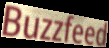
Buzzfeed